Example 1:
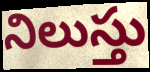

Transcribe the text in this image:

నిలుస్తు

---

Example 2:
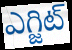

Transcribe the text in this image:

ఎగ్జిట్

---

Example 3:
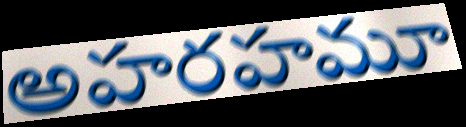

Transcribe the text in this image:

అహరహమూ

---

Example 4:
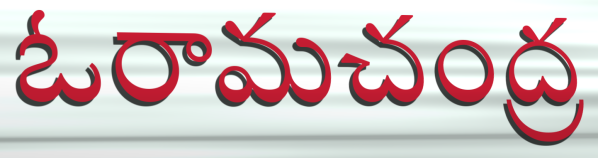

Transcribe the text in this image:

ఓరామచంద్ర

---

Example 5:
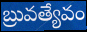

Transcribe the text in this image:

బ్రువత్యేవం